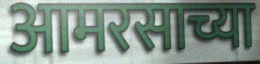
आमरसाच्या